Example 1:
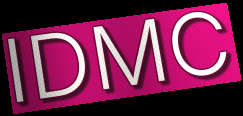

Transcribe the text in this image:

IDMC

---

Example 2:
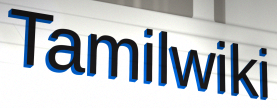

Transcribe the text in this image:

Tamilwiki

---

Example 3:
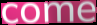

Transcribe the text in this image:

come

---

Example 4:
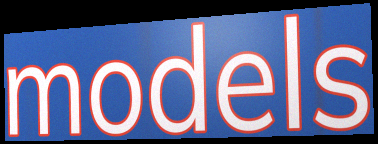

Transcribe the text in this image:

models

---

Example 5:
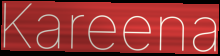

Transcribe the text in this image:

Kareena